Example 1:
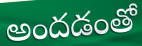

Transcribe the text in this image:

అందడంతో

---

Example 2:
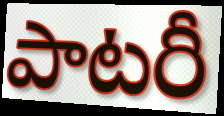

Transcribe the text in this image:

పాటరీ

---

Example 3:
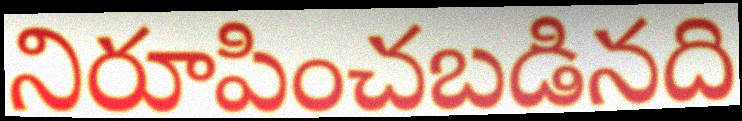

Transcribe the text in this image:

నిరూపించబడినది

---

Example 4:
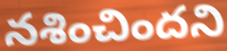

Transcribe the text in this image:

నశించిందని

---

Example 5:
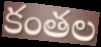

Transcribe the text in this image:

కంతల